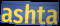
ashta